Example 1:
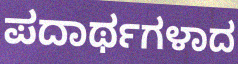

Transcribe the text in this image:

ಪದಾರ್ಥಗಳಾದ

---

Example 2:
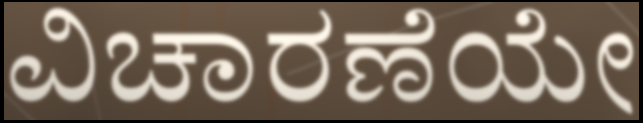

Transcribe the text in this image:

ವಿಚಾರಣೆಯೇ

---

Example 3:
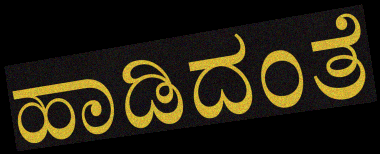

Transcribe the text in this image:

ಹಾಡಿದಂತೆ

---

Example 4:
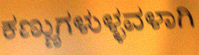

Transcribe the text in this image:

ಕಣ್ಣುಗಳುಳ್ಳವಳಾಗಿ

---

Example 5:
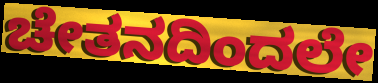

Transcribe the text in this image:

ಚೇತನದಿಂದಲೇ